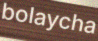
bolaycha